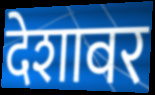
देशावर